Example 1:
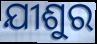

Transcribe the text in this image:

ଯୀଶୁର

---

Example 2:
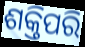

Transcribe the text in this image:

ଶକ୍ତିପରି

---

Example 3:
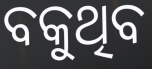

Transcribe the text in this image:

ବକୁଥିବ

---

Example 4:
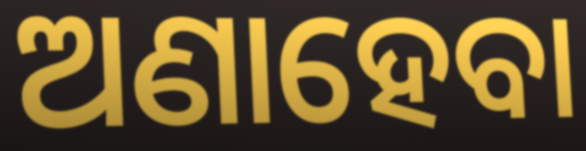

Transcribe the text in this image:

ଅଣାହେବା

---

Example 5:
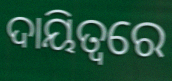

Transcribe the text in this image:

ଦାୟିତ୍ବରେ